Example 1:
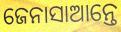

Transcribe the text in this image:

ଜେନାସାଆନ୍ତେ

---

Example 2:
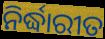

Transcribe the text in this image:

ନିର୍ଦ୍ଧାରୀତ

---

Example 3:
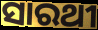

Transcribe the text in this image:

ସାରଥୀ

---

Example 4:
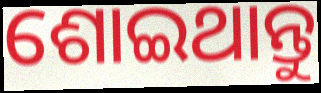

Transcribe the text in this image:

ଶୋଇଥାନ୍ତୁ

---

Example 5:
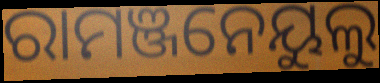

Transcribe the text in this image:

ରାମଞ୍ଜନେୟୁଲୁ